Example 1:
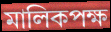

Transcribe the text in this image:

মালিকপক্ষ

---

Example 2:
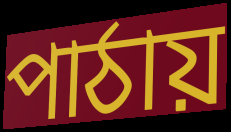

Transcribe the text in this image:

পাঠায়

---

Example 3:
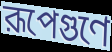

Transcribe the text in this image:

রূপেগুণে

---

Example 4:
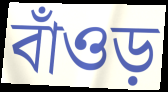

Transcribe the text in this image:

বাঁওড়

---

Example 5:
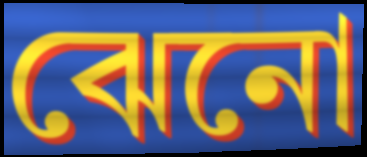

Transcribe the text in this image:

ঝেনো